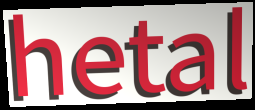
hetal